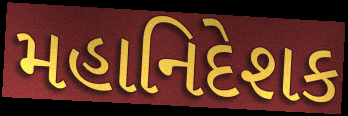
મહાનિદેશક